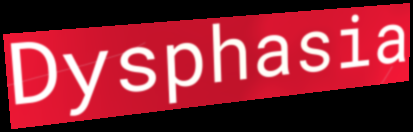
Dysphasia